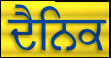
ਦੈਨਿਕ